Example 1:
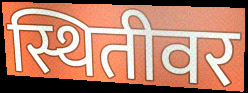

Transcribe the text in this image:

स्थितीवर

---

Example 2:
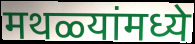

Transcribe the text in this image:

मथळ्यांमध्ये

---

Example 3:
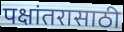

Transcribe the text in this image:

पक्षांतरासाठी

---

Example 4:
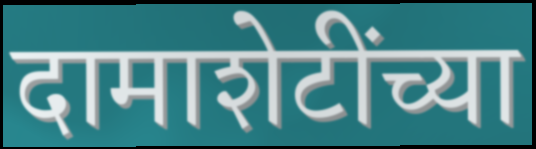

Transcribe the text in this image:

दामाशेटींच्या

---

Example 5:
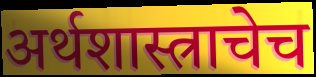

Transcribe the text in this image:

अर्थशास्त्राचेच